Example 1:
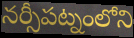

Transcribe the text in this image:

నర్సీపట్నంలోని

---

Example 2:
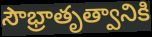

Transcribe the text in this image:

సౌభ్రాతృత్వానికి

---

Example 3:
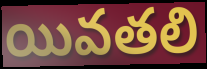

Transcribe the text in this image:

యివతలి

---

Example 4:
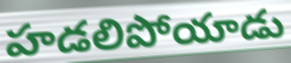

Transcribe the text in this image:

హడలిపోయాడు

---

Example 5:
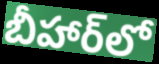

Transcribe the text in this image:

బీహార్‌లో